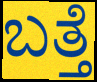
ಬತ್ತೆ